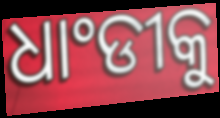
ଧାଂଡୀକୁ